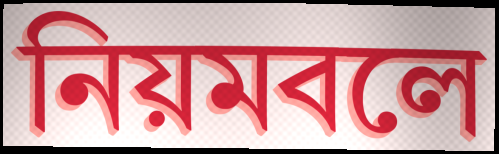
নিয়মবলে